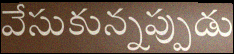
వేసుకున్నప్పుడు